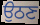
ਉਠਣ